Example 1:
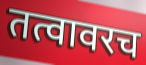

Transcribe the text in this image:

तत्वावरच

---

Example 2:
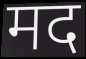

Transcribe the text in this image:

मद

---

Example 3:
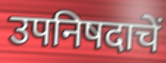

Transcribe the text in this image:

उपनिषदाचें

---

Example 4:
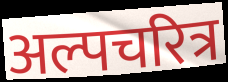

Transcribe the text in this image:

अल्पचरित्र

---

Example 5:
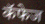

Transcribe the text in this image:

कॅफेज